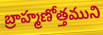
బ్రాహ్మణోత్తముని